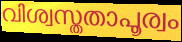
വിശ്വസ്തതാപൂര്വം